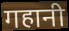
गहानी